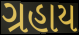
ગ્રહાય